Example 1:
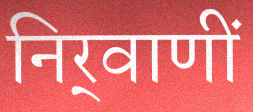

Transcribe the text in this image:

निर्वाणीं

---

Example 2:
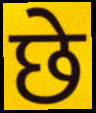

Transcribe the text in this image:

छे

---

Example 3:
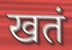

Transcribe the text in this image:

खतं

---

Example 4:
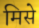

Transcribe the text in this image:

मिसे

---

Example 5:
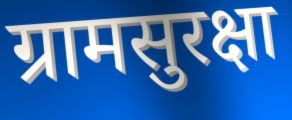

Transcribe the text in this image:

ग्रामसुरक्षा